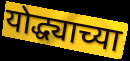
योद्ध्याच्या